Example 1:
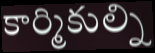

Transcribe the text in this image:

కార్మికుల్ని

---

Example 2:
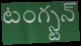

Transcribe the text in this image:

టంగ్స్టన్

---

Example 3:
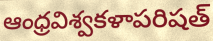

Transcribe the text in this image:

ఆంధ్రవిశ్వకళాపరిషత్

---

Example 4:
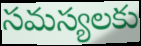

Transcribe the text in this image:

సమస్యలకు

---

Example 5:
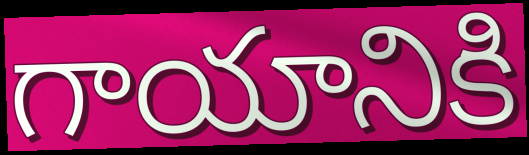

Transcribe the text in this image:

గాయానికి